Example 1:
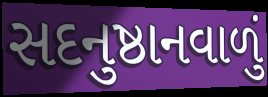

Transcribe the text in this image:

સદનુષ્ઠાનવાળું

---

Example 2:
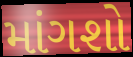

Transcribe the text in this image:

માંગશો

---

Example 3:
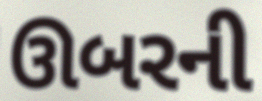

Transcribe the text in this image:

ઊબરની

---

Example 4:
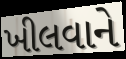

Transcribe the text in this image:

ખીલવાને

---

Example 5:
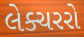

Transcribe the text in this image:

લેક્ચરરો